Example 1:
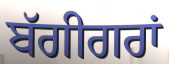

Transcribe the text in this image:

ਬੱਗੀਗਰਾਂ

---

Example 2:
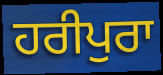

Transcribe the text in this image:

ਹਰੀਪੁਰਾ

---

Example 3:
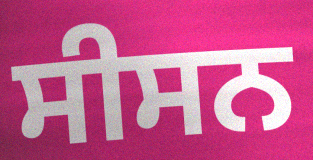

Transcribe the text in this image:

ਸੀਸਨ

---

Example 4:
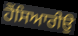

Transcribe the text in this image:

ਹੈਂਸਿਆਰੀਉ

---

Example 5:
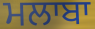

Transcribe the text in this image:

ਮਲਾਬਾ